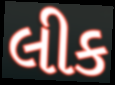
લીક